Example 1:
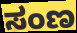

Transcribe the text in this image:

ಸಂಣ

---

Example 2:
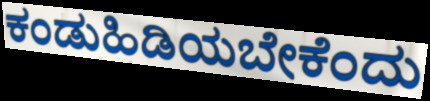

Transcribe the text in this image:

ಕಂಡುಹಿಡಿಯಬೇಕೆಂದು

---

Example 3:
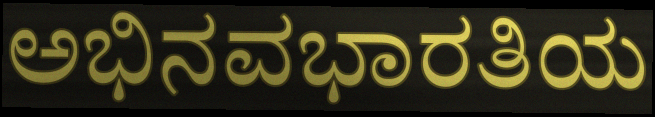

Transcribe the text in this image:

ಅಭಿನವಭಾರತಿಯ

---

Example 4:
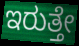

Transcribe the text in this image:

ಇರುತ್ತೇ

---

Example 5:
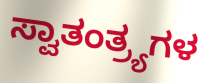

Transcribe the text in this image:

ಸ್ವಾತಂತ್ರ್ಯಗಳ